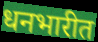
धनभारीत